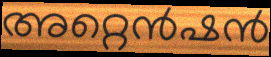
അറ്റെൻഷൻ